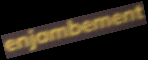
enjambement